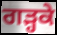
ਗੜ੍ਹਕੇ